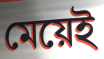
মেয়েই